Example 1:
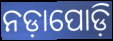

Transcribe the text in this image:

ନଡ଼ାପୋଡ଼ି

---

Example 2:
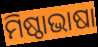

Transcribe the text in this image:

ମିଷ୍ଠାଭାଷା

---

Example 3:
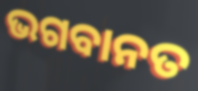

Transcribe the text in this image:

ଭଗବାନତ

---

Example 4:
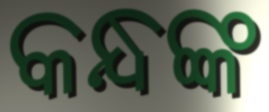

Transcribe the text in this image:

କନ୍ଧଙ୍କ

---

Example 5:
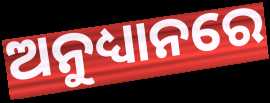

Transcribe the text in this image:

ଅନୁଧ୍ୟାନରେ